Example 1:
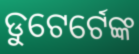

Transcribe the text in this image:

ଡୁଟେର୍ଟେଙ୍କ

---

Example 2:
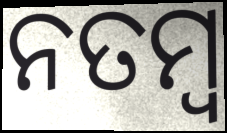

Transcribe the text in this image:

ନତମ୍ବ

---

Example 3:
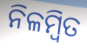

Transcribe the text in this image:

ନିଳମ୍ବିତ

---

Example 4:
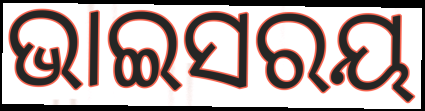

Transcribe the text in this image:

ଭାଇସରୟ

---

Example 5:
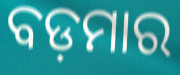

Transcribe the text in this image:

ବଡ଼ମାର